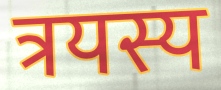
त्रयस्य